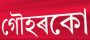
গৌহৰকো